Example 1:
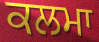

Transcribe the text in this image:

ਕਲਮਾ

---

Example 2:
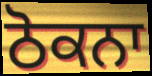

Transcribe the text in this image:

ਠੋਕਨਾ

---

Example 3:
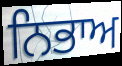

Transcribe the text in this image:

ਨਿਭਾਅ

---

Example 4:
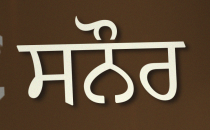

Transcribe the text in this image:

ਸਨੌਰ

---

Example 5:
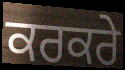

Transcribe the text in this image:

ਕਰਕਰੇ